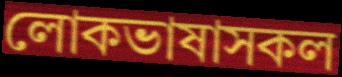
লোকভাষাসকল